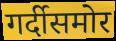
गर्दीसमोर